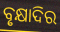
ବୃକ୍ଷାଦିର